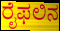
ರೈಫಲಿನ